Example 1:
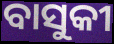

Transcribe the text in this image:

ବାସୁକୀ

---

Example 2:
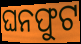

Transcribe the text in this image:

ଘନଫୁଟ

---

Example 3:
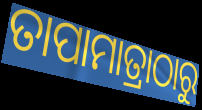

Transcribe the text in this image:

ତାପାମାତ୍ରାଠାରୁ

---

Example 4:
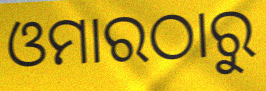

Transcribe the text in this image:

ଓମାରଠାରୁ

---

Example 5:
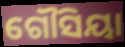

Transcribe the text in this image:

ଗୌସିୟା